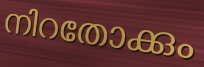
നിറതോക്കും